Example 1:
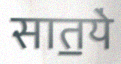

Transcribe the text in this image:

सा॒तये॑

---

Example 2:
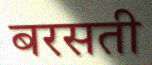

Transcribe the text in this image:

बरसती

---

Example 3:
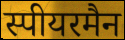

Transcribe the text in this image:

स्पीयरमैन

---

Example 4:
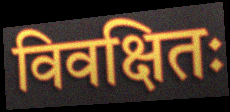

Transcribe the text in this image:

विवक्षितः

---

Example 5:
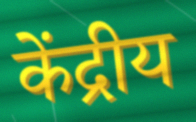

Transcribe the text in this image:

केंद्रीय